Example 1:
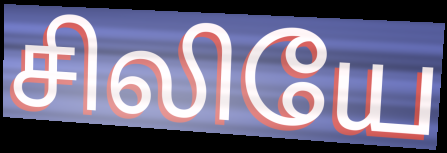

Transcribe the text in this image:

சிலியே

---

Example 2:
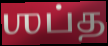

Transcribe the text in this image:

ஶப்த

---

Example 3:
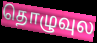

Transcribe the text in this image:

தொழுவுல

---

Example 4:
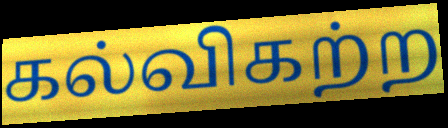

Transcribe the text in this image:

கல்விகற்ற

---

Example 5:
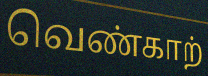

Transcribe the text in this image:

வெண்காற்